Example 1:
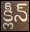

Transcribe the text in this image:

క్లీన్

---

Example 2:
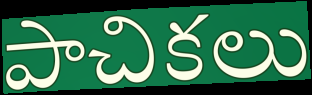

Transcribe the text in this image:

పాచికలు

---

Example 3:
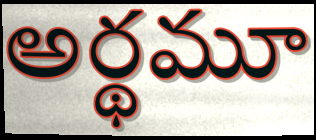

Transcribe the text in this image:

అర్థమూ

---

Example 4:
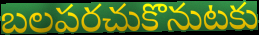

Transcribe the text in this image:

బలపరచుకొనుటకు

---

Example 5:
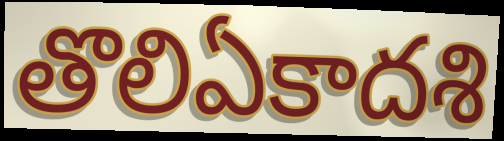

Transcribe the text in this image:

తొలిఏకాదశి